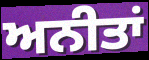
ਅਨੀਤਾਂ